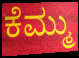
ಕೆಮ್ಮು